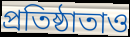
প্রতিষ্ঠাতাও